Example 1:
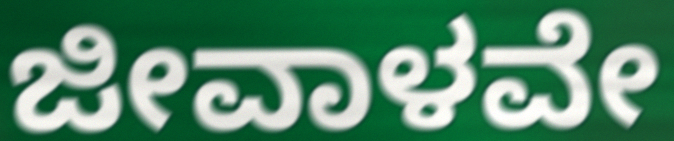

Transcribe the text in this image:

ಜೀವಾಳವೇ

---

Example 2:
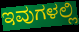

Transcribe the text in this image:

ಇವುಗಳಲ್ಲಿ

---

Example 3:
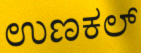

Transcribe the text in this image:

ಉಣಕಲ್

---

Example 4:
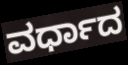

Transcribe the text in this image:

ವರ್ಧಾದ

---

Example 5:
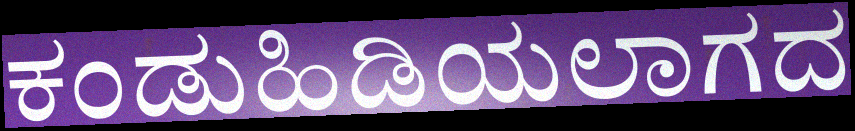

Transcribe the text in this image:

ಕಂಡುಹಿಡಿಯಲಾಗದ